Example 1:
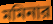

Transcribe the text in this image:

মমিনার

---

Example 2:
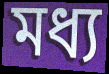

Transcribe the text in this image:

মধ্য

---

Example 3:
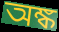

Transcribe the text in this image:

অঙ্ক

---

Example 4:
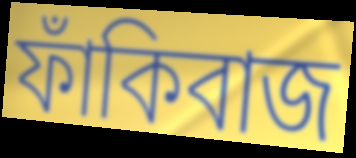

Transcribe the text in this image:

ফাঁকিবাজ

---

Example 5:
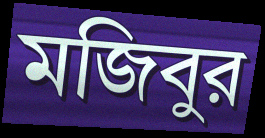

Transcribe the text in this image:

মজিবুর